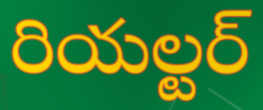
రియల్టర్